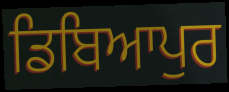
ਡਿਬਿਆਪੁਰ